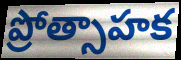
ప్రోత్సాహక